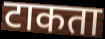
टाकता